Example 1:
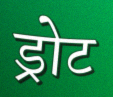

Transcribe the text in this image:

ड्रोट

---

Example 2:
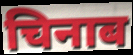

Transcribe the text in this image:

चिनाब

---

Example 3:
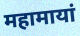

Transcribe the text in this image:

महामायां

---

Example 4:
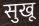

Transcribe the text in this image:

सुखू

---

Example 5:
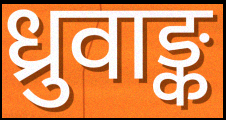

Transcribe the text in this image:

ध्रुवाङ्क